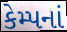
કેમ્પનાં